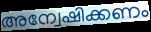
അന്വേഷിക്കണം